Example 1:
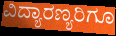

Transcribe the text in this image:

ವಿದ್ಯಾರಣ್ಯರಿಗೂ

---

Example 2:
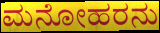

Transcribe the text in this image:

ಮನೋಹರನು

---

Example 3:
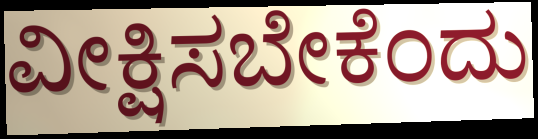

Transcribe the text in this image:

ವೀಕ್ಷಿಸಬೇಕೆಂದು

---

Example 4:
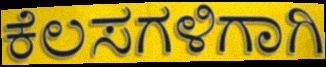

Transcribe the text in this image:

ಕೆಲಸಗಳಿಗಾಗಿ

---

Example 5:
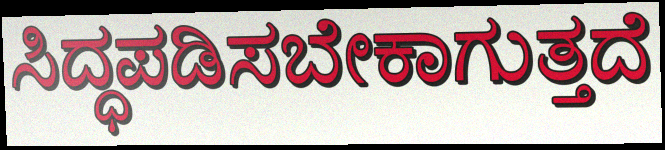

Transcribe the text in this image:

ಸಿದ್ಧಪಡಿಸಬೇಕಾಗುತ್ತದೆ